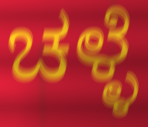
ಚಳ್ಳೆ